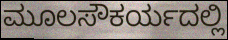
ಮೂಲಸೌಕರ್ಯದಲ್ಲಿ